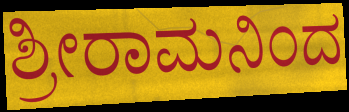
ಶ್ರೀರಾಮನಿಂದ